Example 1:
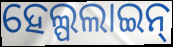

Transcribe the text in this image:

ହେଲ୍ପଲାଇନ୍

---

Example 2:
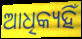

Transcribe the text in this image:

ଆଧିକ୍ୟହିଁ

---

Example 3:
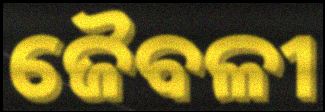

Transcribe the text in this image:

ଜୈବଳୀ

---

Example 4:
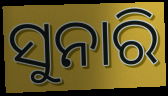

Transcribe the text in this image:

ସୁନାରି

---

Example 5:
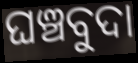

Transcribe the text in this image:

ଘଞ୍ଚବୁଦା